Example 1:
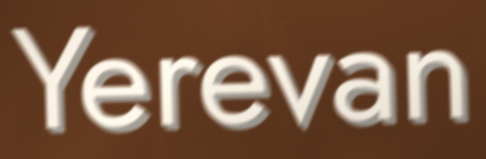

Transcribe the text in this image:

Yerevan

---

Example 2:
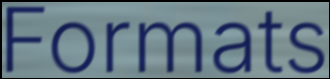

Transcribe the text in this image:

Formats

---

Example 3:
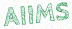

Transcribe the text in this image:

AIIMS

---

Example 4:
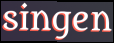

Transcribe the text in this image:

singen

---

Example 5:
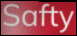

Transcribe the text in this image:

Safty